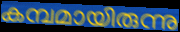
കമ്പമായിരുന്നു